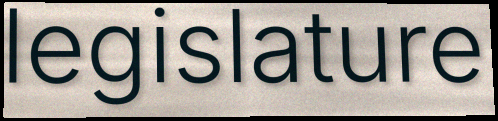
legislature